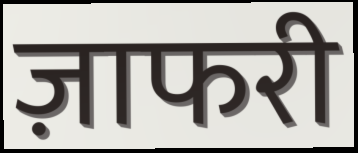
ज़ाफरी